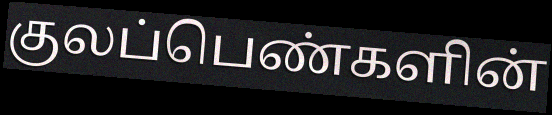
குலப்பெண்களின்